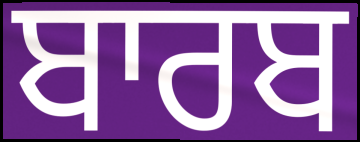
ਬਾਰਬ